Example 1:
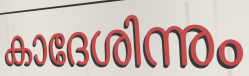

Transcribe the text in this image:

കാദേശിന്നും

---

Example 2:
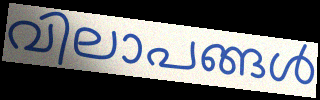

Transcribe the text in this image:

വിലാപങ്ങൾ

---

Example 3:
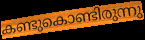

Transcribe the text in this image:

കണ്ടുകൊണ്ടിരുന്നു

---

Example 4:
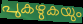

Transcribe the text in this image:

പുകഴുകയും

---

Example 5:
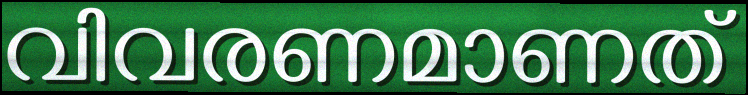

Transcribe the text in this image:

വിവരണമാണത്